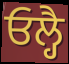
ਓਲ੍ਹ੍ਹੈ